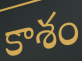
కాశం